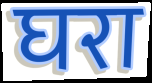
घरा